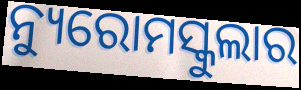
ନ୍ୟୁରୋମସ୍କୁଲାର